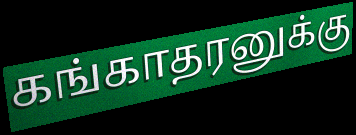
கங்காதரனுக்கு